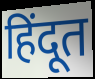
हिंदूत